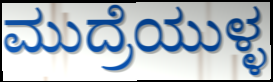
ಮುದ್ರೆಯುಳ್ಳ